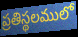
ప్రతిస్థలములో